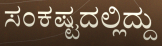
ಸಂಕಷ್ಟದಲ್ಲಿದ್ದು